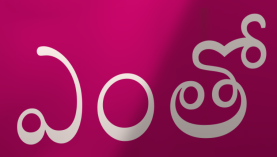
ఎంతో